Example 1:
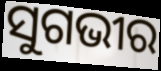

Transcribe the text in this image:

ସୁଗଭୀର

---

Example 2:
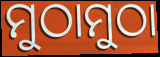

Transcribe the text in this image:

ମୁଠାମୁଠା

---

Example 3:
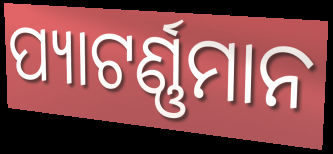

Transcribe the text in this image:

ପ୍ୟାଟର୍ଣ୍ଣମାନ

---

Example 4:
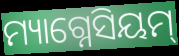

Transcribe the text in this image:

ମ୍ୟାଗ୍ନେସିୟମ୍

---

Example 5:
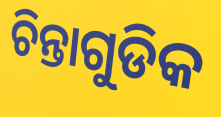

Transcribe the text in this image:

ଚିନ୍ତାଗୁଡିକ